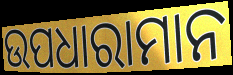
ଉପଧାରାମାନ